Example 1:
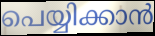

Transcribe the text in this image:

പെയ്യിക്കാൻ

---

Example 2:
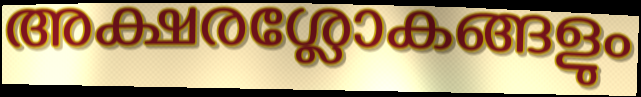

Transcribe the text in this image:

അക്ഷരശ്ലോകങ്ങളും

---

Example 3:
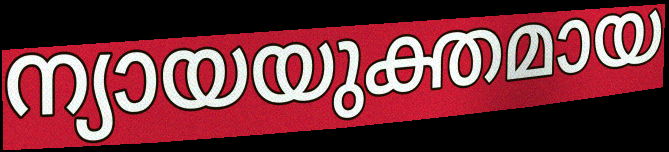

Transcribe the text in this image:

ന്യായയുക്തമായ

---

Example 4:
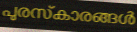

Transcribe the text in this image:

പുരസ്‌കാരങ്ങൾ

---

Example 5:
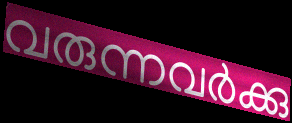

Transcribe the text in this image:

വരുന്നവർക്കു